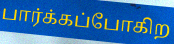
பார்க்கப்போகிற